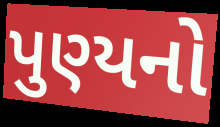
પુણ્યનો